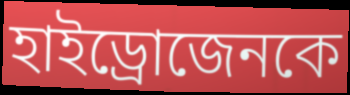
হাইড্রোজেনকে